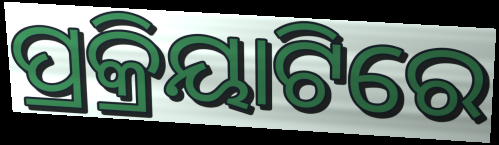
ପ୍ରକ୍ରିୟାଟିରେ